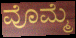
ವೊಮ್ಮೆ